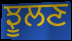
ਝੂਲਣ